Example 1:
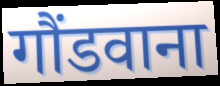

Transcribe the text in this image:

गौंडवाना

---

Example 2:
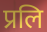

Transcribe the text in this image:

प्रलि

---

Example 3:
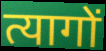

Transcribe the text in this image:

त्यागों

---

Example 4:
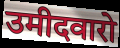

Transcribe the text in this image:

उमीदवारो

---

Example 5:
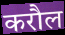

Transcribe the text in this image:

करौल